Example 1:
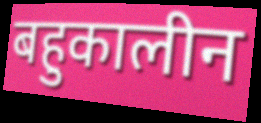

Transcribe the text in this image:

बहुकालीन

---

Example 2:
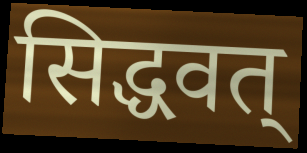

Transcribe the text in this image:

सिद्धवत्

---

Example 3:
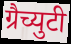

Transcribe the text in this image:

ग्रैच्युटी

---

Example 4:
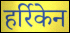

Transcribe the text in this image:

हर्रिकेन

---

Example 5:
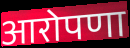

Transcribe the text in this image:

आरोपणा